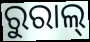
ରୁରାଲ୍